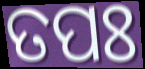
ତପଃ